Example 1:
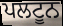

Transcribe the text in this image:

ਪਲਟੂਨ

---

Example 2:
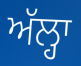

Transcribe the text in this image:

ਅੱਲ੍ਹਾ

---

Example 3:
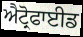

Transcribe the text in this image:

ਐਟ੍ਰੋਫਾਈਡ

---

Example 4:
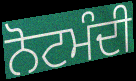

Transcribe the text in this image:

ਨੋਟਮੰਦੀ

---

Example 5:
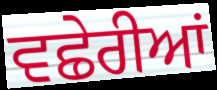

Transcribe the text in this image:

ਵਛੇਰੀਆਂ